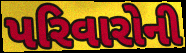
પરિવારોની